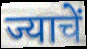
ज्याचें